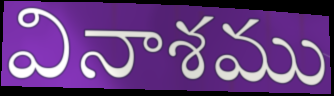
వినాశము